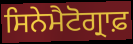
ਸਿਨੇਮੈਟੋਗ੍ਰਾਫ਼